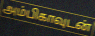
அம்பிகாவுடன்